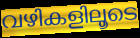
വഴികളിലൂടെ